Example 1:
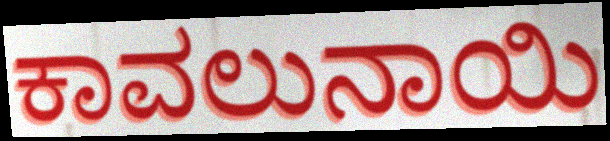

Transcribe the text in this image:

ಕಾವಲುನಾಯಿ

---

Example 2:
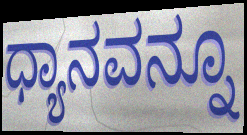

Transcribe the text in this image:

ಧ್ಯಾನವನ್ನೂ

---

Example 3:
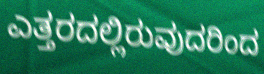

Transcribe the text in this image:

ಎತ್ತರದಲ್ಲಿರುವುದರಿಂದ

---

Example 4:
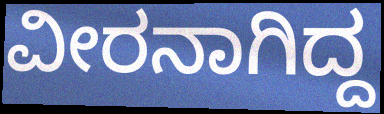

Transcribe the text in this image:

ವೀರನಾಗಿದ್ದ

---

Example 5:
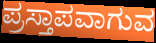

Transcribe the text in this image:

ಪ್ರಸ್ತಾಪವಾಗುವ